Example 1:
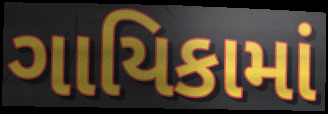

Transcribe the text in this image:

ગાયિકામાં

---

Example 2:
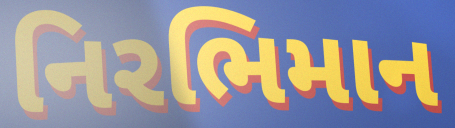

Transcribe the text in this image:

નિરભિમાન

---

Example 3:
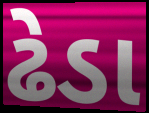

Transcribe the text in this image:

ઢેડા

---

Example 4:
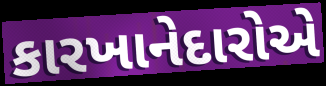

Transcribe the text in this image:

કારખાનેદારોએ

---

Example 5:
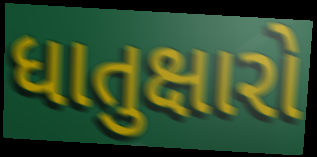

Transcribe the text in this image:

ધાતુક્ષારો